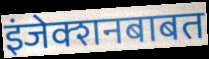
इंजेक्शनबाबत